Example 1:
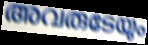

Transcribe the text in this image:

അവരുടേയും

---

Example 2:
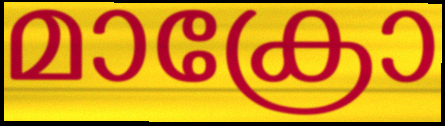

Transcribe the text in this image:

മാക്രോ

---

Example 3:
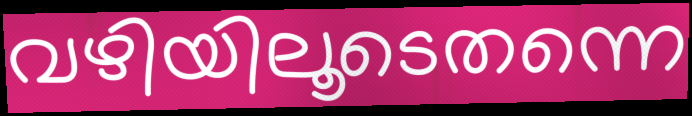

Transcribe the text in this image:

വഴിയിലൂടെതന്നെ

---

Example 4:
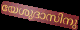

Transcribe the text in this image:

യേശുദാസിനു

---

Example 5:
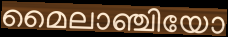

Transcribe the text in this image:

മൈലാഞ്ചിയോ